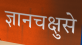
ज्ञानचक्षुसे